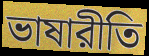
ভাষারীতি